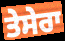
ਤੇਸੇਰਾ